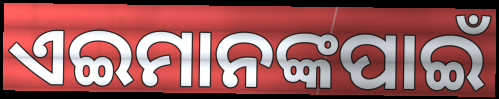
ଏଇମାନଙ୍କପାଇଁ